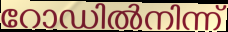
റോഡിൽനിന്ന്